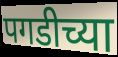
पगडीच्या